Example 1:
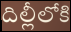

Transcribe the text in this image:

దిల్లీలోకి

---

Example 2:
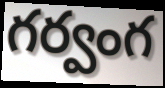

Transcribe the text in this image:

గర్వంగ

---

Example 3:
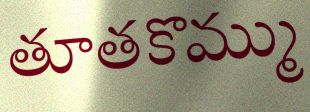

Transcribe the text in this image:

తూతకొమ్ము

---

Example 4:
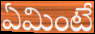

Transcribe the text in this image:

ఏమింటే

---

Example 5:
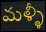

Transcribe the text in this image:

మళ్ళీ